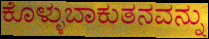
ಕೊಳ್ಳುಬಾಕುತನವನ್ನು